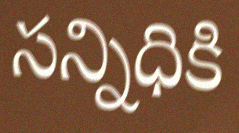
సన్నిధికి